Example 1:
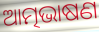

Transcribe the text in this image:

ଆତ୍ମଭାଷଣ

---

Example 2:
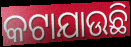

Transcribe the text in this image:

କଟାଯାଉଛି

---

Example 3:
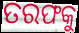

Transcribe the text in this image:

ତରଫକୁ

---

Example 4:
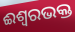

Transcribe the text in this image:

ଈଶ୍ୱରଭକ୍ତ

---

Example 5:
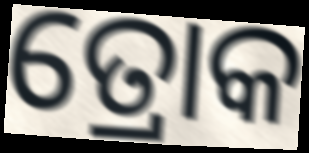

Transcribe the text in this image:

ତ୍ରୋକ